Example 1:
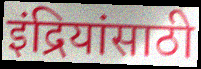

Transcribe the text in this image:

इंद्रियांसाठी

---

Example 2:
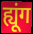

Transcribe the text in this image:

ह्यूंग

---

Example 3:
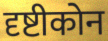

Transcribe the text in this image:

दृष्टीकोन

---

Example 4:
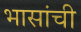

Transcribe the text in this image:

भासांची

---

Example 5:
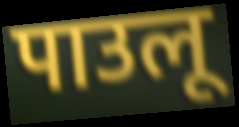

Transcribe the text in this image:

पाउलू